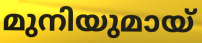
മുനിയുമായ്